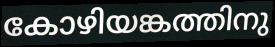
കോഴിയങ്കത്തിനു